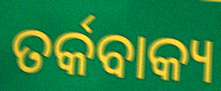
ତର୍କବାକ୍ୟ